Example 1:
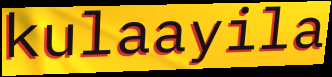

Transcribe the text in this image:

kulaayila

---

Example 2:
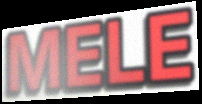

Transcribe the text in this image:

MELE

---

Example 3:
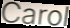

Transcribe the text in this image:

Carol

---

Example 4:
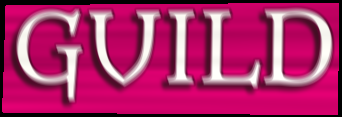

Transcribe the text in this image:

GUILD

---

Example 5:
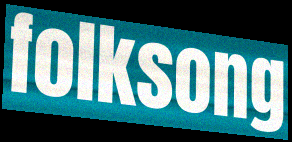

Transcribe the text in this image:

folksong